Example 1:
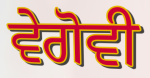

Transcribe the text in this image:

ਵੇਗੋਵੀ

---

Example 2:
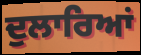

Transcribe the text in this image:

ਦੁਲਾਰਿਆਂ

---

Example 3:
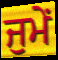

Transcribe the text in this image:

ਜੁਮੇਂ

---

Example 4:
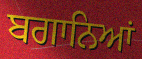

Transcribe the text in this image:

ਬਗਾਨਿਆਂ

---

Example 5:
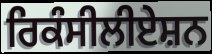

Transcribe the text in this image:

ਰਿਕੰਸੀਲੀਏਸ਼ਨ